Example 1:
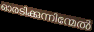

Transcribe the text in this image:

ഓരടിക്കുന്നിന്മേൽ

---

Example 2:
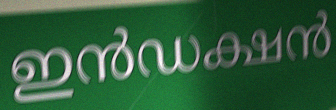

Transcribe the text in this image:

ഇൻഡക്ഷൻ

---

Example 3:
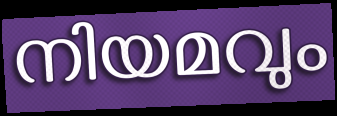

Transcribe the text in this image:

നിയമവും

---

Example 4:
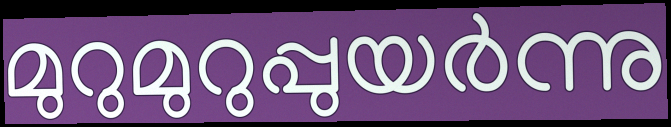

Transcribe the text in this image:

മുറുമുറുപ്പുയർന്നു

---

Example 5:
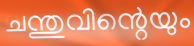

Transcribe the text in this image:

ചന്തുവിന്റെയും